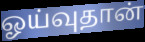
ஓய்வுதான்